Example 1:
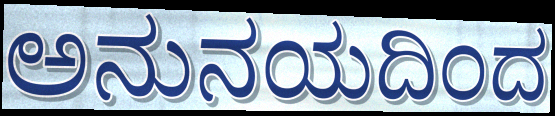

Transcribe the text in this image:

ಅನುನಯದಿಂದ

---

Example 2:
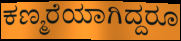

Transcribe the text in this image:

ಕಣ್ಮರೆಯಾಗಿದ್ದರೂ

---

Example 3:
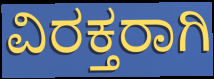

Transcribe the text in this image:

ವಿರಕ್ತರಾಗಿ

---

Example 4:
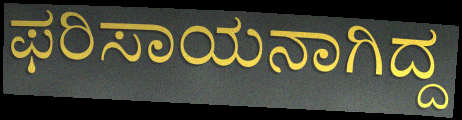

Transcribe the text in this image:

ಫರಿಸಾಯನಾಗಿದ್ದ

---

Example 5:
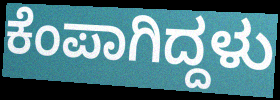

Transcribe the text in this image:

ಕೆಂಪಾಗಿದ್ದಳು